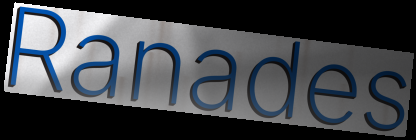
Ranades